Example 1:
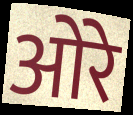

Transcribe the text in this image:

ओरे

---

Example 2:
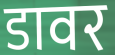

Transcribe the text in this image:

डावर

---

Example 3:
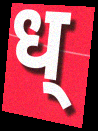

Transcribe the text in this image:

ध्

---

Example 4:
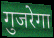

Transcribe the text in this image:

गुजरेगा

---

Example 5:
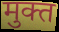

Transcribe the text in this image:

मुक्त